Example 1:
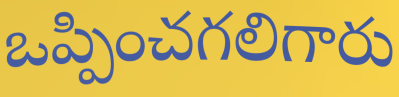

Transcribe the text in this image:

ఒప్పించగలిగారు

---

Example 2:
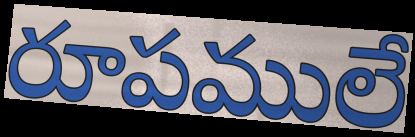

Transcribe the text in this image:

రూపములే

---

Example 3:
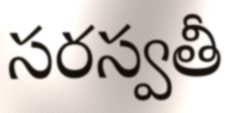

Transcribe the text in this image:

సరస్వతీ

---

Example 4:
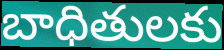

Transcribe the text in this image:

బాధితులకు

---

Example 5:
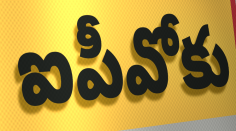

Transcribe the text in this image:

ఐపీవోకు